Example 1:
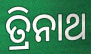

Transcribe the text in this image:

ତ୍ରିନାଥ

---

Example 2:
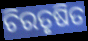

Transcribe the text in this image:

ଚିରତୃଷିତ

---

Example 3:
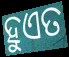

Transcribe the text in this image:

ହୁଏତ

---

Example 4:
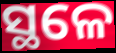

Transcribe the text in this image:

ସ୍ଥଳେ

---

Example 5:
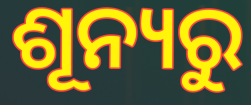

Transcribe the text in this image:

ଶୂନ୍ୟରୁ